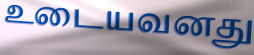
உடையவனது